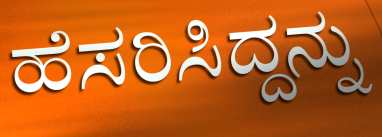
ಹೆಸರಿಸಿದ್ದನ್ನು